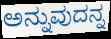
ಅನ್ನುವುದನ್ನ